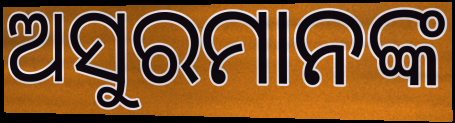
ଅସୁରମାନଙ୍କ